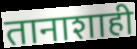
तानाशाही